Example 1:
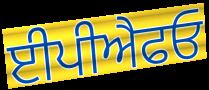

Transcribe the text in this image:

ਈਪੀਐਫਓ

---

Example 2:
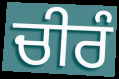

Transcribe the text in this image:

ਚੀਰੰ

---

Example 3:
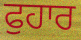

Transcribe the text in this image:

ਫੁਹਾਰ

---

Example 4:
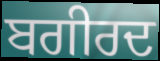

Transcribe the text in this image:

ਬਗੀਰਦ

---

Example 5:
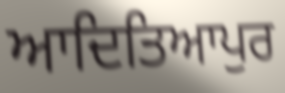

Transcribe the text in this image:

ਆਦਿਤਿਆਪੁਰ